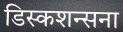
डिस्कशन्सना